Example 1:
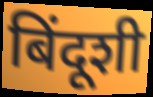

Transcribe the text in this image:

बिंदूशी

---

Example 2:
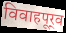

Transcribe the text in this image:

विवाहपूर्व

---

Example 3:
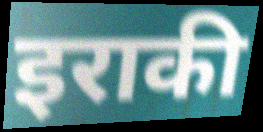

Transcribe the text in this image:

इराकी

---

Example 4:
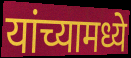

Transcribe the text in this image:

यांच्यामध्ये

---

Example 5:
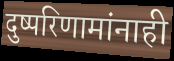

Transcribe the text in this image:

दुष्परिणामांनाही